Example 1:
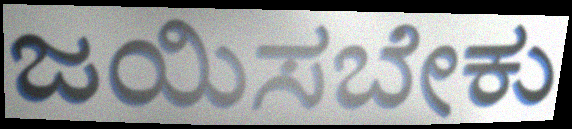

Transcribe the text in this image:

ಜಯಿಸಬೇಕು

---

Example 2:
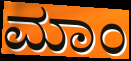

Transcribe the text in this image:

ಮಾಂ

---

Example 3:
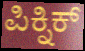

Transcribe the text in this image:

ಪಿಕ್ನಿಕ್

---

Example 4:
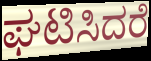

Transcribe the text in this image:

ಘಟಿಸಿದರೆ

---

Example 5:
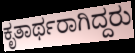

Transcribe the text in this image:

ಕೃತಾರ್ಥರಾಗಿದ್ದರು